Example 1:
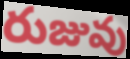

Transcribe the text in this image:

రుజువు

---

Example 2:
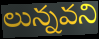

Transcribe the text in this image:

లున్నవని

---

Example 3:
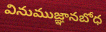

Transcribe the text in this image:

వినుముజ్ఞానబోధ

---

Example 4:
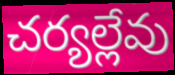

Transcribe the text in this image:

చర్యల్లేవు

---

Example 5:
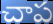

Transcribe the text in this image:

చాప